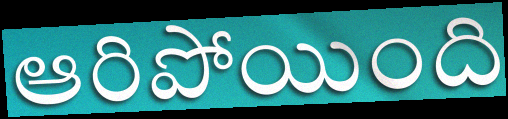
ఆరిపోయింది